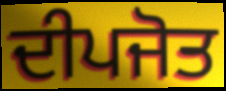
ਦੀਪਜੋਤ